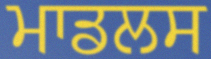
ਮਾਡਲਸ